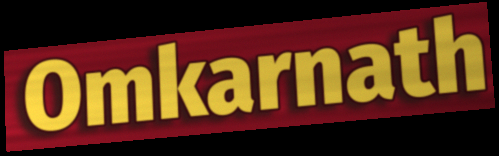
Omkarnath